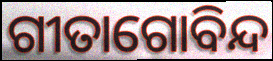
ଗୀତାଗୋବିନ୍ଦ